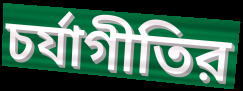
চর্যাগীতির